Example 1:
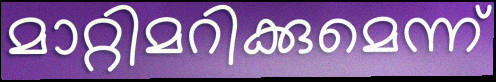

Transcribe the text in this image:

മാറ്റിമറിക്കുമെന്ന്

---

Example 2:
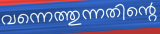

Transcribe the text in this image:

വന്നെത്തുന്നതിന്റെ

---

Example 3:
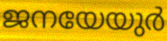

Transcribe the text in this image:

ജനയേയുർ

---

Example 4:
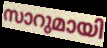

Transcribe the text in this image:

സാറുമായി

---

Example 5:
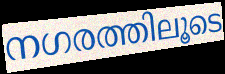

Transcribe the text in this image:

നഗരത്തിലൂടെ